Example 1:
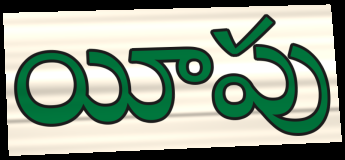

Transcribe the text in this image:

యీపు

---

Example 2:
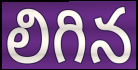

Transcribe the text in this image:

లిగిన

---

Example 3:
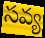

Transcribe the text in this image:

సవ్య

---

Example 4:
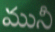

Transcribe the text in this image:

మునీ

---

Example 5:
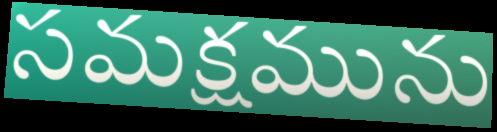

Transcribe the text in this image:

సమక్షమును